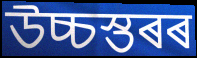
উচ্চস্তৰৰ